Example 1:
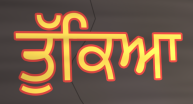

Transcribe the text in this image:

ਤੁੱਕਿਆ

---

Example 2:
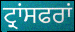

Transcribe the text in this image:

ਟ੍ਰਾਂਸਫਰਾਂ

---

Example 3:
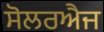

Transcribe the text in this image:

ਸੋਲਰਐਜ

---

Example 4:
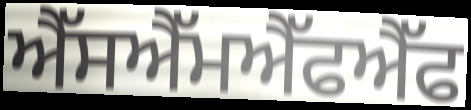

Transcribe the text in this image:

ਐੱਸਐੱਮਐੱਫਐੱਫ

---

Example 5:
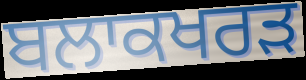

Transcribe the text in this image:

ਬਲਾਕਖਰੜ